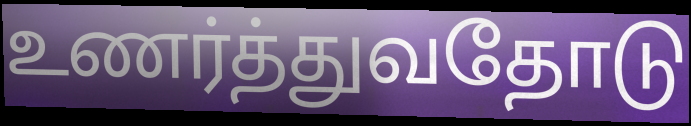
உணர்த்துவதோடு